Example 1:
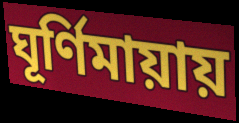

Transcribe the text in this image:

ঘূর্ণিমায়ায়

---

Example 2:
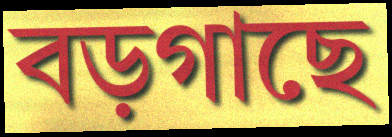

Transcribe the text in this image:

বড়গাছে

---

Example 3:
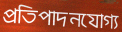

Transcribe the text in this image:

প্রতিপাদনযোগ্য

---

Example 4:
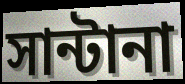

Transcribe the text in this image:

সান্টানা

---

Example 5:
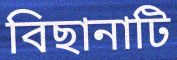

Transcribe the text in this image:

বিছানাটি